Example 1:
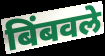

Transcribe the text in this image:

बिंबवले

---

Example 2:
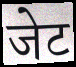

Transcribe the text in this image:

जेट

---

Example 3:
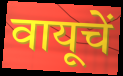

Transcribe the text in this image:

वायूचें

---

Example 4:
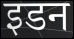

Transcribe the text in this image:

इडन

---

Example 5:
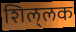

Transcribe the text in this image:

शिल्लक